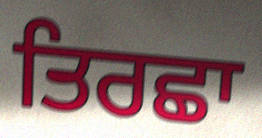
ਤਿਰਛਾ